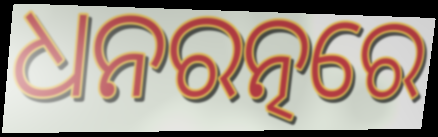
ଧନରତ୍ନରେ